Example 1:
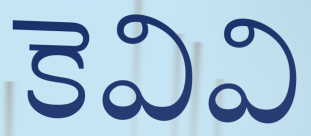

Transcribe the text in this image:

కెవివి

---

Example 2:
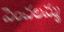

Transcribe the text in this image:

పెంచలమ్మ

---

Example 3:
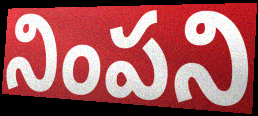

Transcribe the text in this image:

నింపని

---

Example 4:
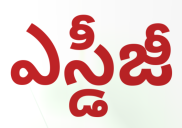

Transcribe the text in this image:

ఎస్డీజీ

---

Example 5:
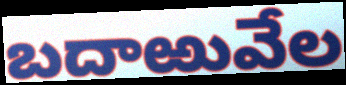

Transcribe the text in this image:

బదాఱువేల